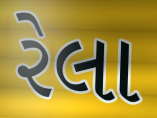
રેલા